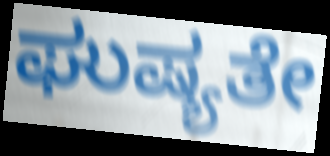
ಘುಷ್ಯತೇ